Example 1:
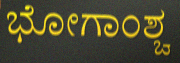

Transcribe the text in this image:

ಭೋಗಾಂಶ್ಚ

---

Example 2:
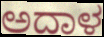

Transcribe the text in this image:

ಅದಾಳ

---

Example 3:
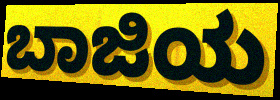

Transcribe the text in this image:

ಬಾಜಿಯ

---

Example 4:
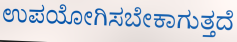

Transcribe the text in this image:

ಉಪಯೋಗಿಸಬೇಕಾಗುತ್ತದೆ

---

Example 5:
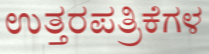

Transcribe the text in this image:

ಉತ್ತರಪತ್ರಿಕೆಗಳ